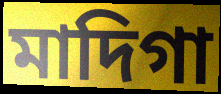
মাদিগা